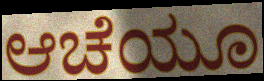
ಆಚೆಯೂ